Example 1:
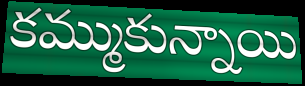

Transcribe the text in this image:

కమ్ముకున్నాయి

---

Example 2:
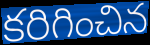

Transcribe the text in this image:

కరిగించిన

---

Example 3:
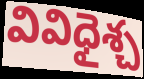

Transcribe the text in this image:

వివిధైశ్చ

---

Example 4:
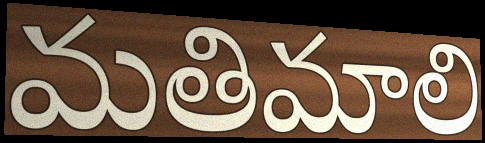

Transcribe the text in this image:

మతిమాలి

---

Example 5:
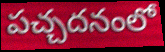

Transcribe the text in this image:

పచ్చదనంలో